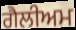
ਗੈਲੀਅਮ